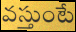
వస్తుంటే